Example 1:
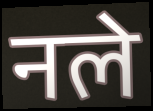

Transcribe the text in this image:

नले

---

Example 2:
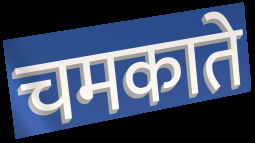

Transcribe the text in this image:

चमकाते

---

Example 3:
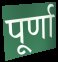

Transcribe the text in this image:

पूर्णा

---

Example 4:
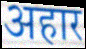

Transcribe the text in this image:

अहार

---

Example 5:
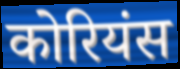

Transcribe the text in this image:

कोरियंस